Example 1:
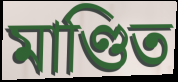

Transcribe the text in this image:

মাণ্ডিত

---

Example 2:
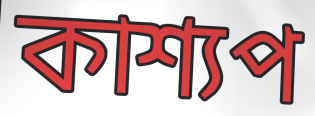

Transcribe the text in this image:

কাশ্যপ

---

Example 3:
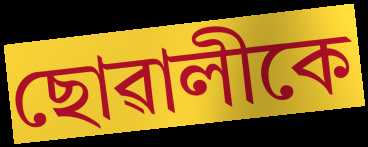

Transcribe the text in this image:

ছোৱালীকে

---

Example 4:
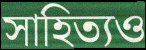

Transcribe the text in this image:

সাহিত্যও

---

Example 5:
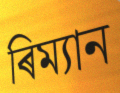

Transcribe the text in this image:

ৰিম্যান